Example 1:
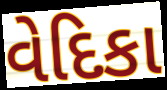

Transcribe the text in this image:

વેદિકા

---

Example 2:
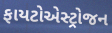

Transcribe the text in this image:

ફાયટોએસ્ટ્રોજન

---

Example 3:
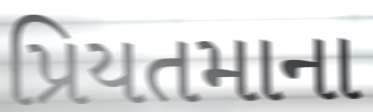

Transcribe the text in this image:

પ્રિયતમાના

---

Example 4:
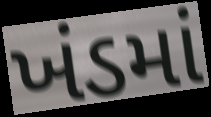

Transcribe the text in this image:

ખંડમાં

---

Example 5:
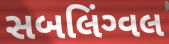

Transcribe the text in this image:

સબલિંગ્વલ